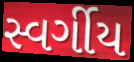
સ્વર્ગીય